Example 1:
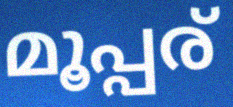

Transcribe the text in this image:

മൂപ്പര്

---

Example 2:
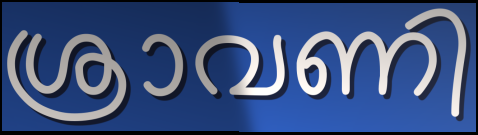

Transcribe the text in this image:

ശ്രാവണി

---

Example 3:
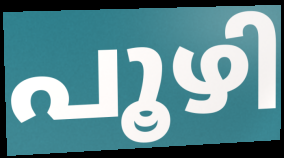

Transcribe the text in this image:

പൂഴി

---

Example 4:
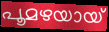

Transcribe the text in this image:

പൂമഴയായ്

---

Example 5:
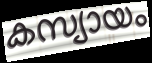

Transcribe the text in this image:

കസ്യായം